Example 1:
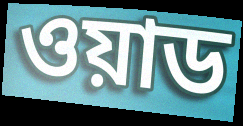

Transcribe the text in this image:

ওয়াড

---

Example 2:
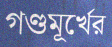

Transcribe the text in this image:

গণ্ডমূর্খের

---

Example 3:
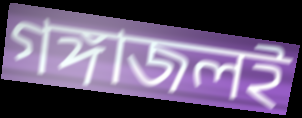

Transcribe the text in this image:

গঙ্গাজলই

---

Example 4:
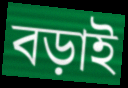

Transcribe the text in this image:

বড়াই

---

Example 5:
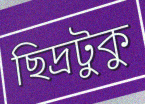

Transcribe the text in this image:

ছিদ্রটুকু